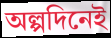
অল্পদিনেই